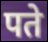
पते